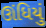
ઊંધિયું